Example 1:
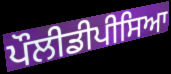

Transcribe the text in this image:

ਪੌਲੀਡੀਪੀਸਿਆ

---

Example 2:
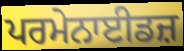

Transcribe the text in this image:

ਪਰਮੇਨਾਈਡਜ਼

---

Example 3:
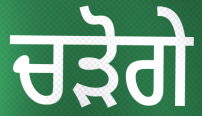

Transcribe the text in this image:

ਚੜੋਗੇ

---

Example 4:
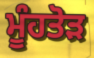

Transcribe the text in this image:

ਮੂੰਹਤੋੜ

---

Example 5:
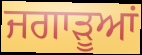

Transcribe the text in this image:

ਜਗਾੜੂਆਂ